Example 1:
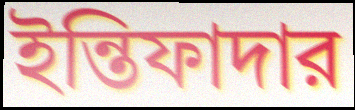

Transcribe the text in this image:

ইন্তিফাদার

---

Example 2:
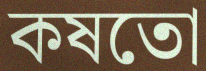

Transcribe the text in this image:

কষতো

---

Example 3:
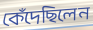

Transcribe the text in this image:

কেঁদেছিলেন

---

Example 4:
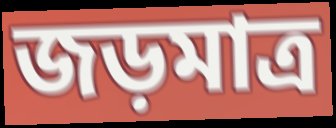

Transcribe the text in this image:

জড়মাত্র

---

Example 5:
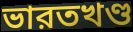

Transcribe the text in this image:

ভারতখণ্ড